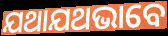
ଯଥାଯଥଭାବେ